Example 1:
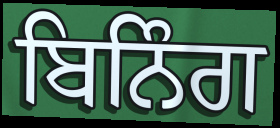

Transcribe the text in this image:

ਬਿਨਿੰਗ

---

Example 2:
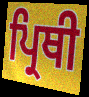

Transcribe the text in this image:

ਪ੍ਰਿਥੀ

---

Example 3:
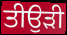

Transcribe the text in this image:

ਤੀਉੜੀ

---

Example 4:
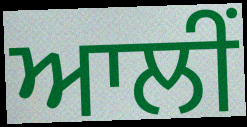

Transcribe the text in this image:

ਆਲੀਂ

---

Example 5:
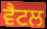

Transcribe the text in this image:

ਵੈਟਲ